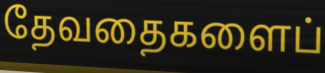
தேவதைகளைப்